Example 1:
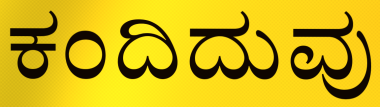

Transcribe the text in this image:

ಕಂದಿದುವು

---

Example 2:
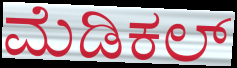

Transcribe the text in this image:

ಮೆಡಿಕಲ್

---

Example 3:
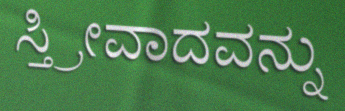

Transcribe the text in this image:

ಸ್ತ್ರೀವಾದವನ್ನು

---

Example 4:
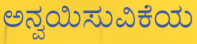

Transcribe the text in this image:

ಅನ್ವಯಿಸುವಿಕೆಯ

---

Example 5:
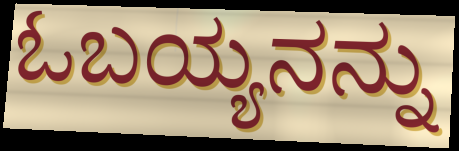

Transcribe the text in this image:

ಓಬಯ್ಯನನ್ನು